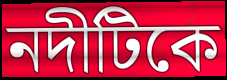
নদীটিকে